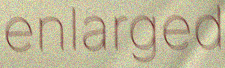
enlarged